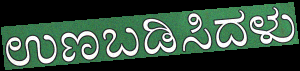
ಉಣಬಡಿಸಿದಳು